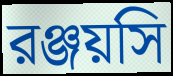
রঞ্জয়সি